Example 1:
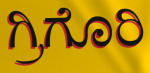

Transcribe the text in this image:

ಗ್ರಿಗೊರಿ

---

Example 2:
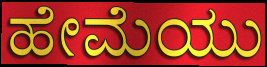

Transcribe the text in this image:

ಹೇಮೆಯು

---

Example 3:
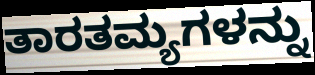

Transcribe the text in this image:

ತಾರತಮ್ಯಗಳನ್ನು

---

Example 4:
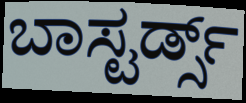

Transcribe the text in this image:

ಬಾಸ್ಟರ್ಡ್ಸ್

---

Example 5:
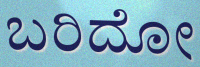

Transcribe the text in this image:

ಬರಿದೋ